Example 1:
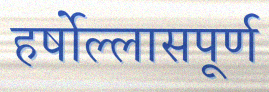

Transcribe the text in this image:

हर्षोल्लासपूर्ण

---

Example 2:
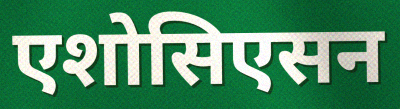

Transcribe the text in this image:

एशोसिएसन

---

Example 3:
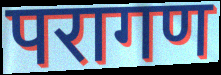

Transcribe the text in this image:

परागण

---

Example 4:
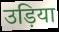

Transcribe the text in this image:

उड़िया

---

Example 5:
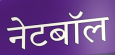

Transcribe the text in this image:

नेटबॉल